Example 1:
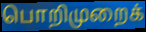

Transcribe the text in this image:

பொறிமுறைக்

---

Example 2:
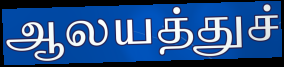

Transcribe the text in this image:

ஆலயத்துச்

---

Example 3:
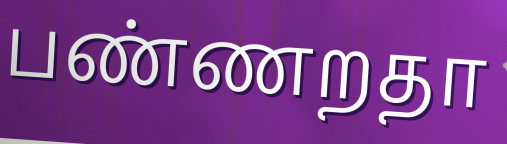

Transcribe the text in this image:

பண்ணறதா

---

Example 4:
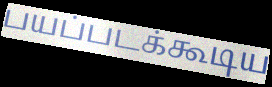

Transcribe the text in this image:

பயப்படக்கூடிய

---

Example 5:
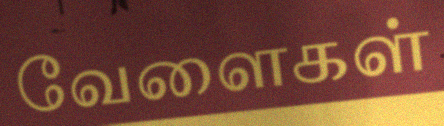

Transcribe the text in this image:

வேளைகள்